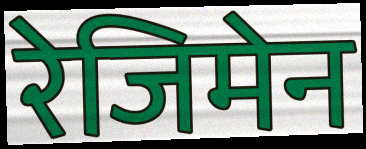
रेजिमेन